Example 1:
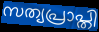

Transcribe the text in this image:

സത്യപ്രാപ്തി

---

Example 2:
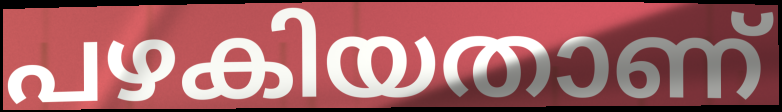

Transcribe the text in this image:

പഴകിയതാണ്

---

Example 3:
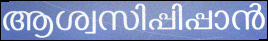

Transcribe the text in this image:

ആശ്വസിപ്പിപ്പാൻ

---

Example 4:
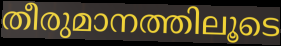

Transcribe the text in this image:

തീരുമാനത്തിലൂടെ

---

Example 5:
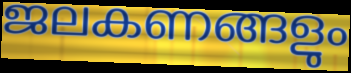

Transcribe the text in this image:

ജലകണങ്ങളും